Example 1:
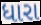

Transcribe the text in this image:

ધારા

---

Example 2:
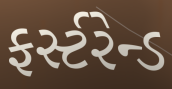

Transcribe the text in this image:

ફર્સ્ટરેન્ડ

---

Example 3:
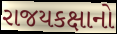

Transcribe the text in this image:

રાજયકક્ષાનો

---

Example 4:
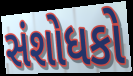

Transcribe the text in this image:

સંશોધકો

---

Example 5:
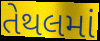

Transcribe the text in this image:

તેથલમાં